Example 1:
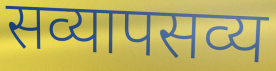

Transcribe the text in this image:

सव्यापसव्य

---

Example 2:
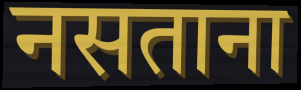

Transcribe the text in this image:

नसताना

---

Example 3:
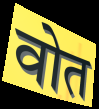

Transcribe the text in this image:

वोत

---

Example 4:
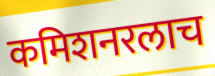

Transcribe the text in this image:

कमिशनरलाच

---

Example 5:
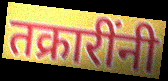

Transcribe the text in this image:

तक्रारींनी